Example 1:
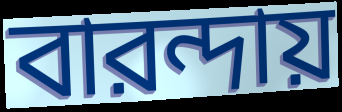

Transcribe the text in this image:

বারন্দায়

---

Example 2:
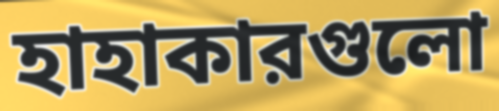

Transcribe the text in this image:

হাহাকারগুলো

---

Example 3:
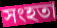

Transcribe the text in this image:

সংহতা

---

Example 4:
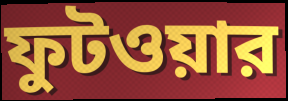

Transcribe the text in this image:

ফুটওয়ার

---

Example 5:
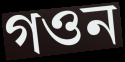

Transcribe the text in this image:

গওন